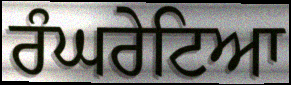
ਰੰਘਰੇਟਿਆ